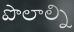
పొలాల్ని